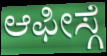
ಆಫೀಸ್ಗೆ